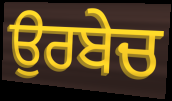
ਉਰਬੇਚ